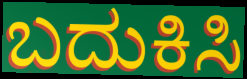
ಬದುಕಿಸಿ